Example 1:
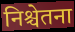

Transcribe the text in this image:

निश्चेतना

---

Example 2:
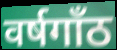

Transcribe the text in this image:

वर्षगाँठ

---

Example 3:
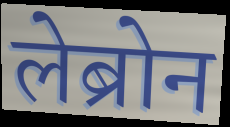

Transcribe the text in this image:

लेब्रोन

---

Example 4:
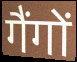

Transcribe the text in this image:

गैंगों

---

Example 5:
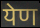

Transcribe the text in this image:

येण